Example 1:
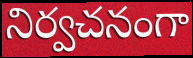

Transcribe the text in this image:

నిర్వచనంగా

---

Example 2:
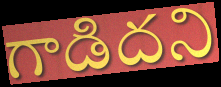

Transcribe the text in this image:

గాడిదని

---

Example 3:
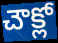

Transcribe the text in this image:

చౌక్లో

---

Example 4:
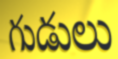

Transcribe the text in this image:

గుడులు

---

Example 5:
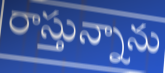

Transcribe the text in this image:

రాస్తున్నాను